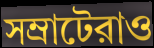
সম্রাটেরাও